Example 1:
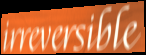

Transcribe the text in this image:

irreversible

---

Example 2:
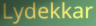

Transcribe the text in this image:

Lydekkar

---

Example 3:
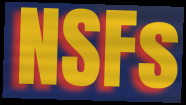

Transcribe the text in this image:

NSFs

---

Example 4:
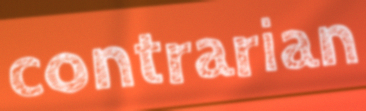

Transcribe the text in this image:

contrarian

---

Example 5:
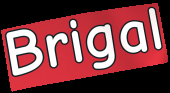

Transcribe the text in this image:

Brigal